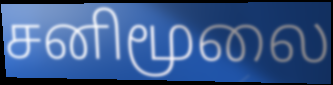
சனிமூலை